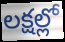
లక్షల్లో